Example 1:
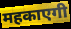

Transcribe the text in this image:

महकाएगी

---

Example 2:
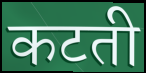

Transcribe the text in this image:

कटती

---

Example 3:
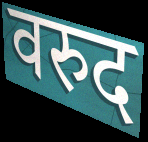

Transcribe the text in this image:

वरुद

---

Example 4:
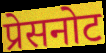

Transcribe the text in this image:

प्रेसनोट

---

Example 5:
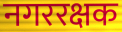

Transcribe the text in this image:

नगररक्षक